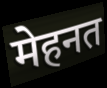
मेहनत